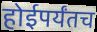
होईपर्यंतच